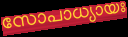
സോപാധ്യായഃ